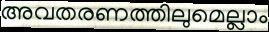
അവതരണത്തിലുമെല്ലാം